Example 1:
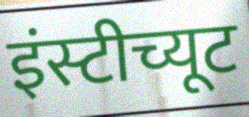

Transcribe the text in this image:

इंस्‍टीच्‍यूट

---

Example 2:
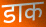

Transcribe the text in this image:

डाक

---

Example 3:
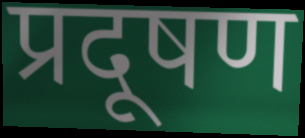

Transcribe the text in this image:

प्रदूषण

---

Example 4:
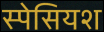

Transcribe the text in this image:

स्पेसियश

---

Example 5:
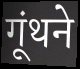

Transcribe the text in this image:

गूंथने